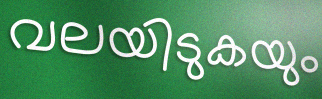
വലയിടുകയും